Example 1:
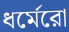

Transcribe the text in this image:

ধর্মেরো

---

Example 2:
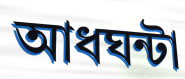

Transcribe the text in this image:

আধঘন্টা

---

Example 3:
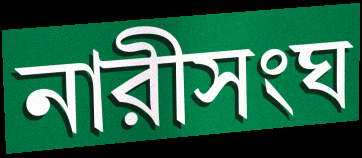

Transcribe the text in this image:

নারীসংঘ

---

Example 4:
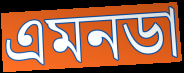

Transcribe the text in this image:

এমনডা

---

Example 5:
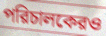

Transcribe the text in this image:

পরিচালকেরও